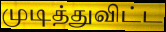
முடித்துவிட்ட